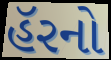
હૅરનો